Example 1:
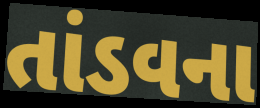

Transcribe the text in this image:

તાંડવના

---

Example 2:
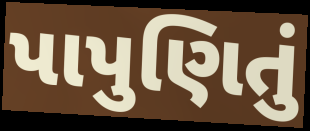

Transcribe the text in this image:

પાપુણિતું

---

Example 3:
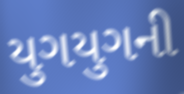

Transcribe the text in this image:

યુગયુગની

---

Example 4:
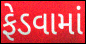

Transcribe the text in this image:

ફેડવામાં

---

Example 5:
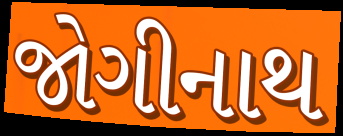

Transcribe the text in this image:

જોગીનાથ